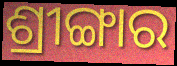
ଶ୍ରୀଙ୍ଗାର